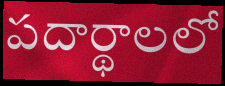
పదార్థాలలో